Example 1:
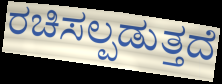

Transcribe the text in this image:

ರಚಿಸಲ್ಪಡುತ್ತದೆ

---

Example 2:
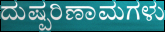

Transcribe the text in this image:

ದುಷ್ಪರಿಣಾಮಗಳು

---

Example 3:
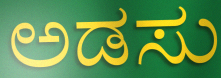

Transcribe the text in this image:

ಅಡಸು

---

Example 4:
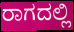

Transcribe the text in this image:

ರಾಗದಲ್ಲಿ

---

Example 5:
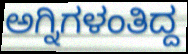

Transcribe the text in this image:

ಅಗ್ನಿಗಳಂತಿದ್ದ